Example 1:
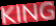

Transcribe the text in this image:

KING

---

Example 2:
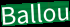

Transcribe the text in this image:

Ballou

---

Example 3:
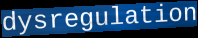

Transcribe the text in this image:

dysregulation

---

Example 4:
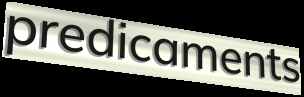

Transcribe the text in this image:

predicaments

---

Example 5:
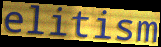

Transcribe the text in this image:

elitism